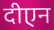
दीएन